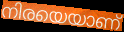
നിരയെയാണ്